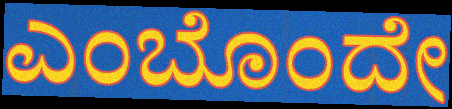
ಎಂಬೊಂದೇ